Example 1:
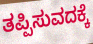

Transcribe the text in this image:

ತಪ್ಪಿಸುವದಕ್ಕೆ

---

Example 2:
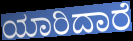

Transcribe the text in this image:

ಯಾರಿದಾರೆ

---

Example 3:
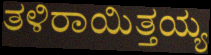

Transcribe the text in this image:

ತಳಿರಾಯಿತ್ತಯ್ಯ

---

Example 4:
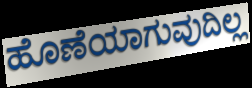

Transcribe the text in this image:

ಹೊಣೆಯಾಗುವುದಿಲ್ಲ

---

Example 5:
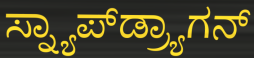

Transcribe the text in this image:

ಸ್ನ್ಯಾಪ್‌ಡ್ರ್ಯಾಗನ್